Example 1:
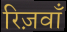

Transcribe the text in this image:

रिज़वाँ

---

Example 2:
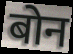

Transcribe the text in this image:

बोन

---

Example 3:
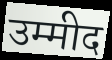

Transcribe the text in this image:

उम्मीद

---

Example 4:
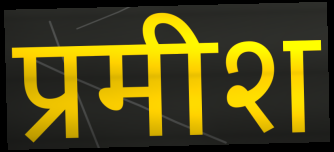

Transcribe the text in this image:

प्रमीश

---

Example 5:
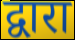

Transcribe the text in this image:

द्वारा